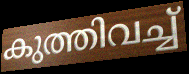
കുത്തിവച്ച്